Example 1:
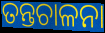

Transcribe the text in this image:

ତନ୍ତଚାଳନା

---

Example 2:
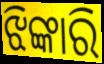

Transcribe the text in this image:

ଝିଙ୍କାରି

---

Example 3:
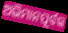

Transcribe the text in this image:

ଅଭିମାନପୂର୍ବକ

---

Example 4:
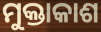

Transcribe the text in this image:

ମୁକ୍ତାକାଶ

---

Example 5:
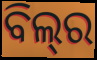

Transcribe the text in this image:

ବିଲ୍‌ର